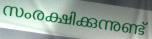
സംരക്ഷിക്കുന്നുണ്ട്